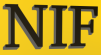
NIF